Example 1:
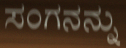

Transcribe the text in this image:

ಸಂಗನನ್ನು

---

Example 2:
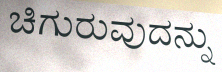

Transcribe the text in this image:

ಚಿಗುರುವುದನ್ನು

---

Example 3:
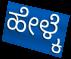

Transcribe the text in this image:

ಹೇಳ್ಕೆ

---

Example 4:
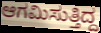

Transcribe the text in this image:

ಆಗಮಿಸುತ್ತಿದ್ದ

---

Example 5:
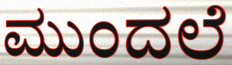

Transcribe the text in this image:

ಮುಂದಲೆ